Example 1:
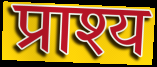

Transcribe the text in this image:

प्राश्य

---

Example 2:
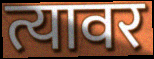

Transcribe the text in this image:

त्यावर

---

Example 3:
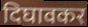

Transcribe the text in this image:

दिघावकर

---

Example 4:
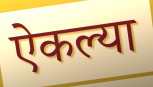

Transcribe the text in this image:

ऐकल्या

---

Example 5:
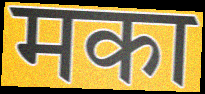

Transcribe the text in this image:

मका